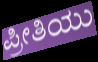
ಪ್ರೀತಿಯು